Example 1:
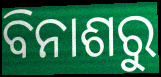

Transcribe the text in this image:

ବିନାଶରୁ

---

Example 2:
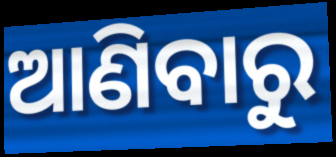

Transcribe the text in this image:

ଆଣିବାରୁ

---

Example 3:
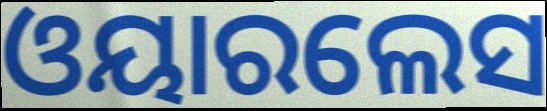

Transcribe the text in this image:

ଓୟାରଲେସ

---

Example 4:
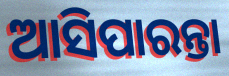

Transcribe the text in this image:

ଆସିପାରନ୍ତା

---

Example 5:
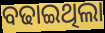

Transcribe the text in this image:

ବଢାଇଥିଲା